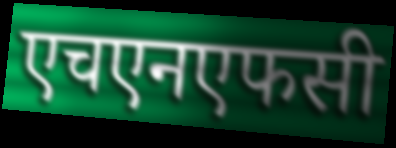
एचएनएफसी